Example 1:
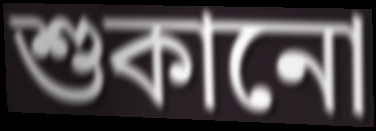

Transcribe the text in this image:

শুকানো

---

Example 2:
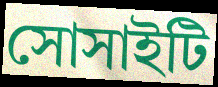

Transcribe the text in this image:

সোসাইটি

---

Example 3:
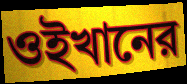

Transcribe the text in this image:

ওইখানের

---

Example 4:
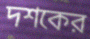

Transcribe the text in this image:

দশকের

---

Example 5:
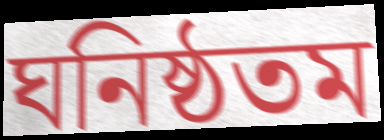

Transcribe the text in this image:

ঘনিষ্ঠতম